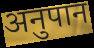
अनुपान